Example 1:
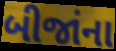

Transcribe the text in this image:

બીજાંના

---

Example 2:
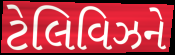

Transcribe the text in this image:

ટેલિવિઝને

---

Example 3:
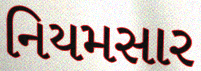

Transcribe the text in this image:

નિયમસાર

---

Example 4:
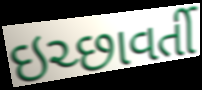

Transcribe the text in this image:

ઇચ્છાવર્તી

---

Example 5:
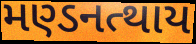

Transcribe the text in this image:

મણ્ડનત્થાય